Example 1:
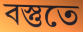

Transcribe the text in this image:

বস্তুতে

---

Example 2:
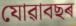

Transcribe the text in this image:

যোৱাবছৰ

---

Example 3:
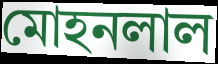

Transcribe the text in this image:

মোহনলাল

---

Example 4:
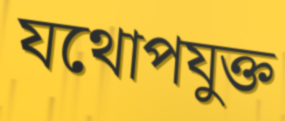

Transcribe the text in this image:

যথোপযুক্ত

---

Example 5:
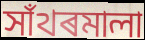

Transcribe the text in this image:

সাঁথৰমালা